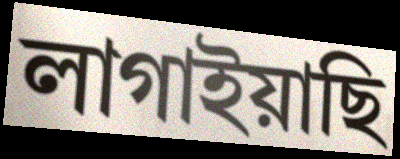
লাগাইয়াছি